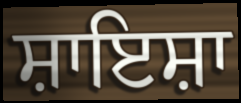
ਸ਼ਾਇਸ਼ਾ